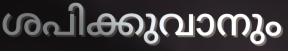
ശപിക്കുവാനും